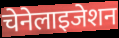
चेनेलाइजेशन